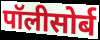
पॉलीसोर्ब